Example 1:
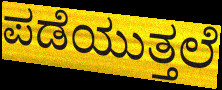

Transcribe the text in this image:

ಪಡೆಯುತ್ತಲೆ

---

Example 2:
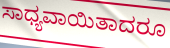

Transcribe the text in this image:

ಸಾಧ್ಯವಾಯಿತಾದರೂ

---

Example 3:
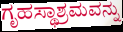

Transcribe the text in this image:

ಗೃಹಸ್ಥಾಶ್ರಮವನ್ನು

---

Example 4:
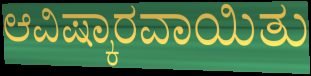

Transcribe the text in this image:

ಆವಿಷ್ಕಾರವಾಯಿತು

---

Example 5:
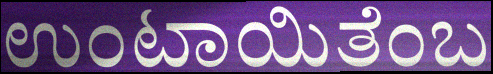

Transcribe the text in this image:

ಉಂಟಾಯಿತೆಂಬ